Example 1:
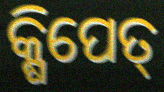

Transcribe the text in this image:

କ୍ଷିପେତ୍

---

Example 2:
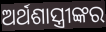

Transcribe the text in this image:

ଅର୍ଥଶାସ୍ତ୍ରୀଙ୍କର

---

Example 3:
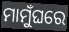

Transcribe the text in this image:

ମାମୁଁଘରେ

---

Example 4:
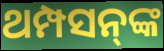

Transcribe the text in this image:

ଥମ୍ପସନ୍‌ଙ୍କ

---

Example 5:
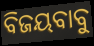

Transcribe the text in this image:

ବିଜୟବାବୁ